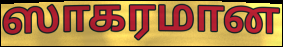
ஸாகரமான